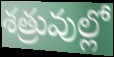
శత్రువుల్లో